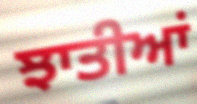
ਝਾਤੀਆਂ